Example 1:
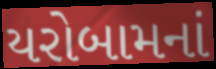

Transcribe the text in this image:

યરોબામનાં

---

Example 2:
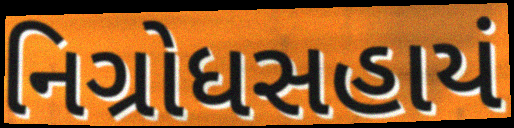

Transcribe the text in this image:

નિગ્રોધસહાયં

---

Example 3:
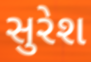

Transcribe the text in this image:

સુરેશ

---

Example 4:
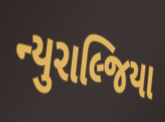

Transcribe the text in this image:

ન્યુરાલ્જિયા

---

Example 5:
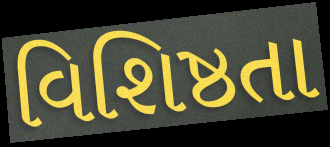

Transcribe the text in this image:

વિશિષ્ઠતા